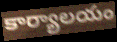
కార్యాలయం